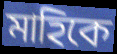
মাহিকে